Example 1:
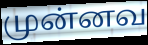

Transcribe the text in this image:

முன்னவ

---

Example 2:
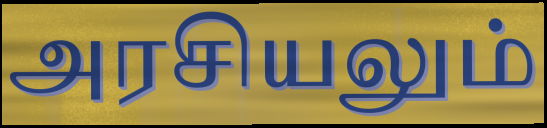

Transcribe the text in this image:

அரசியலும்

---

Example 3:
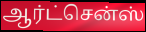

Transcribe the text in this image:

ஆர்ட்சென்ஸ்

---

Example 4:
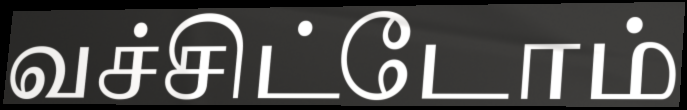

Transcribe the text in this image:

வச்சிட்டோம்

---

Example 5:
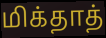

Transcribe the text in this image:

மிக்தாத்